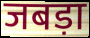
जबड़ा